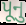
પૂનુ